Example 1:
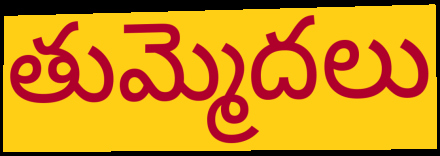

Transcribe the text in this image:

తుమ్మెదలు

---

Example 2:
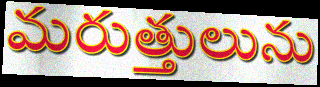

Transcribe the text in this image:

మరుత్తులును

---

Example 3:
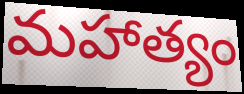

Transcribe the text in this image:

మహాత్యం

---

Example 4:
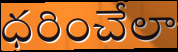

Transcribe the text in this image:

ధరించేలా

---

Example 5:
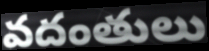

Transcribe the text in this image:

వదంతులు